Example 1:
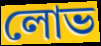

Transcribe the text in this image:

লোভ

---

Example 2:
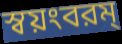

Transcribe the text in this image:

স্বয়ংবরম্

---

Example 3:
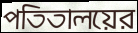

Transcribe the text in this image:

পতিতালয়ের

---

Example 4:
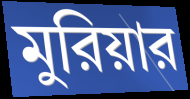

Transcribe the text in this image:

মুরিয়ার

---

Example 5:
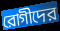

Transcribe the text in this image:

রোগীদের